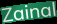
Zainal